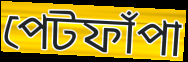
পেটফাঁপা